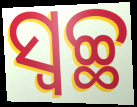
ସ୍ବଚ୍ଛ